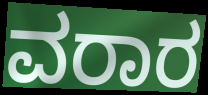
ವರಾರ